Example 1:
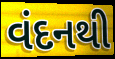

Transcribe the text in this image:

વંદનથી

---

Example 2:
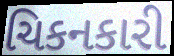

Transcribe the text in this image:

ચિકનકારી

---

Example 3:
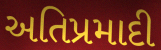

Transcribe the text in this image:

અતિપ્રમાદી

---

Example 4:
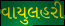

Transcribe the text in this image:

વાયુલહરી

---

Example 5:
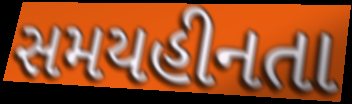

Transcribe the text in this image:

સમયહીનતા